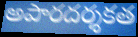
అపారదర్శకత